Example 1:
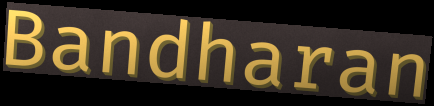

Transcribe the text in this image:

Bandharan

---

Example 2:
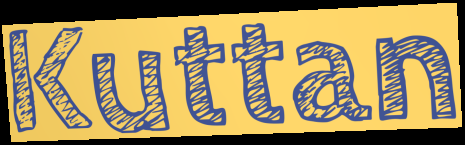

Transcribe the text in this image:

Kuttan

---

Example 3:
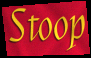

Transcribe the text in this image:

Stoop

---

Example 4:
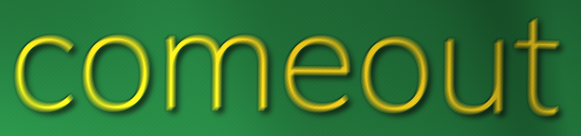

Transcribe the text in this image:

comeout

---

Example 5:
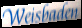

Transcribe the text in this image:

Weisbaden